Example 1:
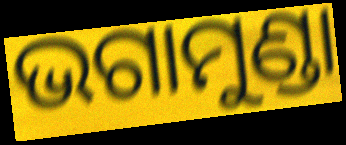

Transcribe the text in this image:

ଭଗାମୁଣ୍ଡା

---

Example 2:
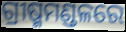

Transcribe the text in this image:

ଗ୍ରୀଷ୍ମମଣ୍ଡଳରେ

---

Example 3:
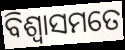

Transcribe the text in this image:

ବିଶ୍ୱାସମତେ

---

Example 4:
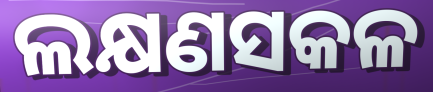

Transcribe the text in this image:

ଲକ୍ଷଣସକଳ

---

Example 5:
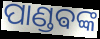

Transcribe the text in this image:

ପାଣ୍ଡଵଙ୍କ